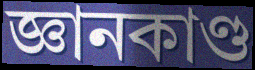
জ্ঞানকাণ্ড